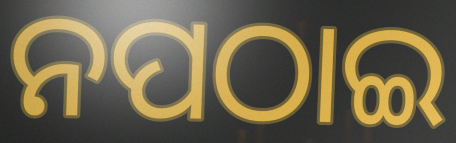
ନପଠାଇ